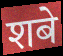
शबे